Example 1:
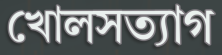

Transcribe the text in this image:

খোলসত্যাগ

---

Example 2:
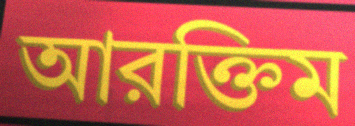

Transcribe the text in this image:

আরক্তিম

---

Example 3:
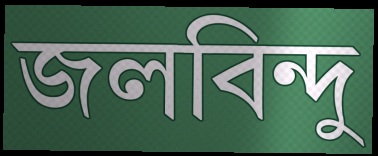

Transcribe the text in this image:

জলবিন্দু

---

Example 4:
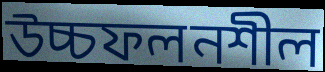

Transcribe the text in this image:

উচ্চফলনশীল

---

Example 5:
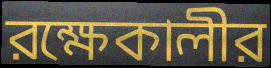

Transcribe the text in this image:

রক্ষেকালীর